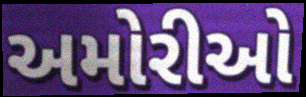
અમોરીઓ